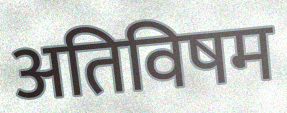
अतिविषम